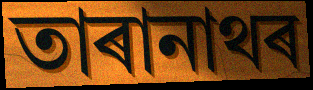
তাৰানাথৰ